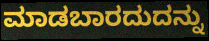
ಮಾಡಬಾರದುದನ್ನು